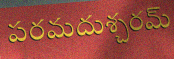
పరమదుశ్చరమ్